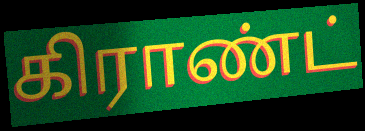
கிராண்ட்